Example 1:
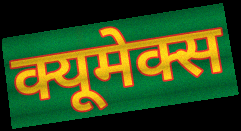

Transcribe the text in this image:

क्यूमेक्स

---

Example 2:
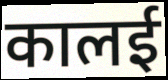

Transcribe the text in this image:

कालई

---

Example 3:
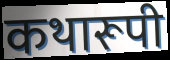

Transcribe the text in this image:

कथारूपी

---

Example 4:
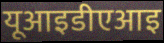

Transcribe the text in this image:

यूआइडीएआइ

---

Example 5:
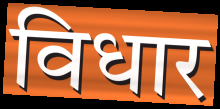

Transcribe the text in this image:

विधार